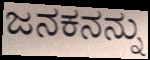
ಜನಕನನ್ನು